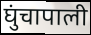
घुंचापाली